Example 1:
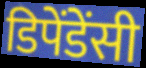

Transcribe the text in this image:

डिपेंडेंसी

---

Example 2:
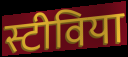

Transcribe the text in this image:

स्‍टीविया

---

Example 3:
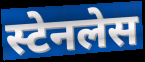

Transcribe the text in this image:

स्टेनलेस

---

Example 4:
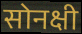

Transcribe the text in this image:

सोनक्षी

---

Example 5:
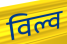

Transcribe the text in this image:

विल्व